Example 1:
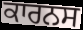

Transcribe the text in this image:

ਕਾਰਨਸ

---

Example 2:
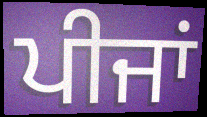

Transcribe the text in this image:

ਪੀਜਾਂ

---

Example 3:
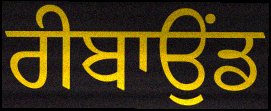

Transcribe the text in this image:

ਰੀਬਾਉਂਡ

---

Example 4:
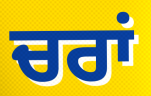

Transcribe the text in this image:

ਚਰਾਂ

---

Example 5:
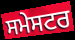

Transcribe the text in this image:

ਸਮੇਸਟਰ